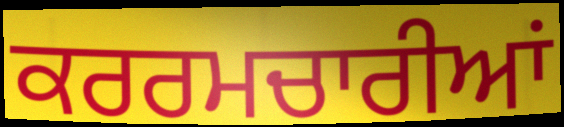
ਕਰਰਮਚਾਰੀਆਂ